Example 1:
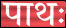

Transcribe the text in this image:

पाथः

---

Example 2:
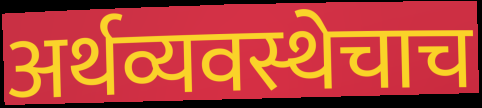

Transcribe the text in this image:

अर्थव्यवस्थेचाच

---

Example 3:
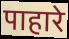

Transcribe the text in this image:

पाहारे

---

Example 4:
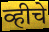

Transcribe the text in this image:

व्हीचे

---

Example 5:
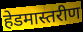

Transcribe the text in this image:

हेडमास्तरीण